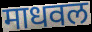
माधवल